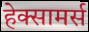
हेक्सामर्स